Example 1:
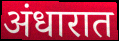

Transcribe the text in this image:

अंधारात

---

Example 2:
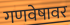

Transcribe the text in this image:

गणवेषावर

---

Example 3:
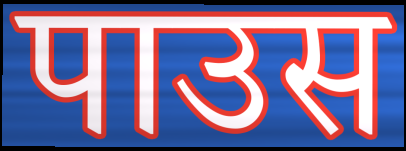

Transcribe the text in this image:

पाउस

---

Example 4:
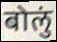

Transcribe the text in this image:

बोलुं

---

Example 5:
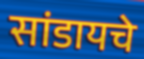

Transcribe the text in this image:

सांडायचे